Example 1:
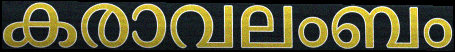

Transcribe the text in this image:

കരാവലംബം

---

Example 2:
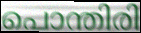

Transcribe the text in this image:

പൊന്തിരി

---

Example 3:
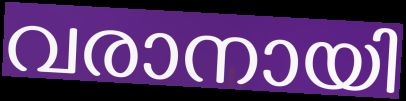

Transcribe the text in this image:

വരാനായി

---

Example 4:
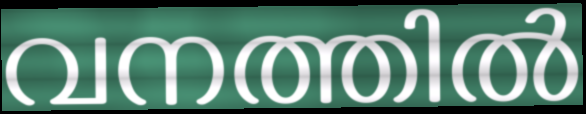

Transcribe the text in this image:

വനത്തിൽ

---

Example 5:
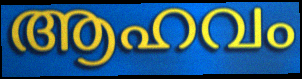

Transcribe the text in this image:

ആഹവം